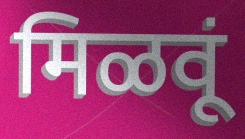
मिळवूं